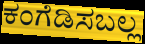
ಕಂಗೆಡಿಸಬಲ್ಲ